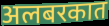
अलबरकात